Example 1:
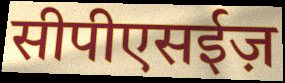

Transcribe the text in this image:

सीपीएसईज़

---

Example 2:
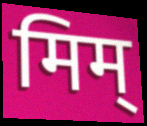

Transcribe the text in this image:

मिम्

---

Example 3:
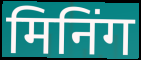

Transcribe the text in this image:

मिनिंग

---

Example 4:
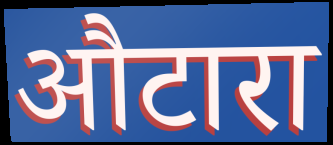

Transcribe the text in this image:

औटारा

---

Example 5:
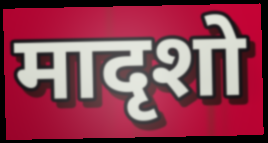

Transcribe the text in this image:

मादृशो